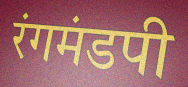
रंगमंडपी